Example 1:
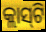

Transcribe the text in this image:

କ୍ଲାସ୍‍ଟି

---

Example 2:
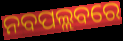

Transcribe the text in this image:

ନବପଲ୍ଲବରେ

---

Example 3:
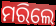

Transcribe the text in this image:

ମରିଲେ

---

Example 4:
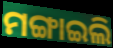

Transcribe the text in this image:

ମଙ୍ଗାଇଲି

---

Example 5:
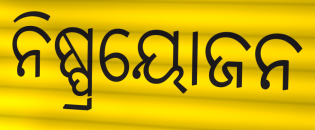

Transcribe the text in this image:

ନିଷ୍ପ୍ରୟୋଜନ